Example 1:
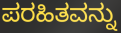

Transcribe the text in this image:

ಪರಹಿತವನ್ನು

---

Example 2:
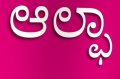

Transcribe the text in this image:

ಆಲ್ಫಾ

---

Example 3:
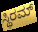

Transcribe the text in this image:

ಸ್ಥಿರಮ್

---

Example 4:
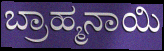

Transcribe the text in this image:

ಬ್ರಾಹ್ಮನಾಯಿ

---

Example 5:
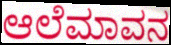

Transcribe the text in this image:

ಆಲೆಮಾವನ